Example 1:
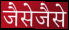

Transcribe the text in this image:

जैसेजैसे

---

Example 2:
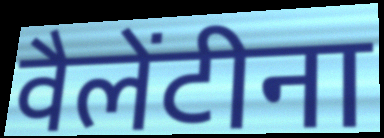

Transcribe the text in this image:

वैलेंटीना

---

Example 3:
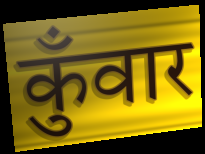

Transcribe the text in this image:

कुँवार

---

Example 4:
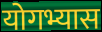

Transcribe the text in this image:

योगभ्यास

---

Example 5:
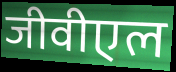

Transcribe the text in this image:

जीवीएल